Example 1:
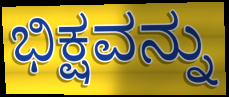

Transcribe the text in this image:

ಭಿಕ್ಷವನ್ನು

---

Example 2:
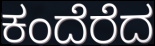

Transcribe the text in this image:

ಕಂದೆರೆದ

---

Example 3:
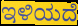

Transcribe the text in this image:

ಇಳಿಯದೆ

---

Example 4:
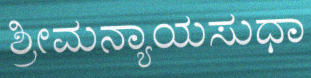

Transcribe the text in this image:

ಶ್ರೀಮನ್ಯಾಯಸುಧಾ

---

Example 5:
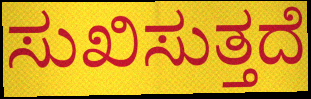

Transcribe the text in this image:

ಸುಖಿಸುತ್ತದೆ